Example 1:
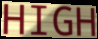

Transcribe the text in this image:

HIGH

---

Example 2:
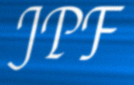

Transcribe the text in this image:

JPF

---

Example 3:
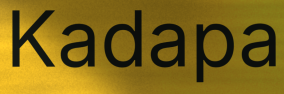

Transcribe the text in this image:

Kadapa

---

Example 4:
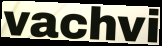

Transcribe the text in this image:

vachvi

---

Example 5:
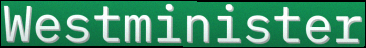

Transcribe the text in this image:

Westminister